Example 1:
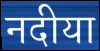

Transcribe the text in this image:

नदीया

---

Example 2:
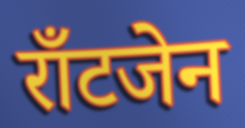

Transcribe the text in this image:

राँटजेन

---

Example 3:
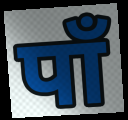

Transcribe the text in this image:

पाँ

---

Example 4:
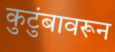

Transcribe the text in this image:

कुटुंबावरून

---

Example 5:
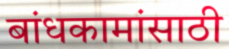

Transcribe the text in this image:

बांधकामांसाठी